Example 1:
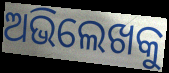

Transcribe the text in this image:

ଅଭିଲେଖକୁ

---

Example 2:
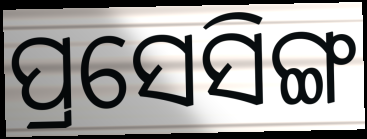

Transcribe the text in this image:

ପ୍ରସେସିଙ୍ଗ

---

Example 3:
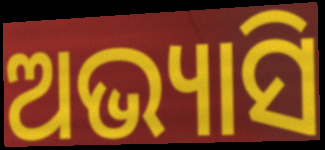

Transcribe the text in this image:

ଅଭ୍ୟାସି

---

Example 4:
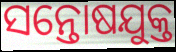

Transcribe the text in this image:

ସନ୍ତୋଷଯୁକ୍ତ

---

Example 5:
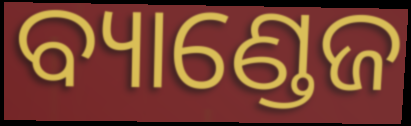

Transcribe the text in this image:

ବ୍ୟାଣ୍ଡେଜ